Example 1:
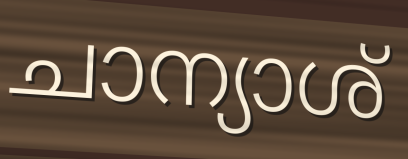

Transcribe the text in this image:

ചാന്യാശ്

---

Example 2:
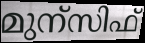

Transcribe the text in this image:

മുന്സിഫ്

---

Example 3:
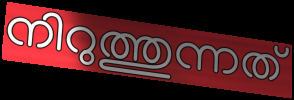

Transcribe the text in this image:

നിറുത്തുന്നത്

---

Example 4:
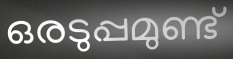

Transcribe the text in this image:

ഒരടുപ്പമുണ്ട്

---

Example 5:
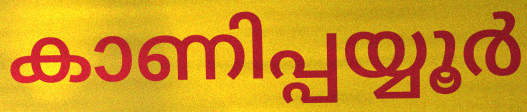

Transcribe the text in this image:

കാണിപ്പയ്യൂർ